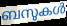
ബസുകൾ